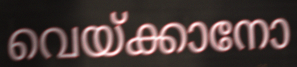
വെയ്ക്കാനോ